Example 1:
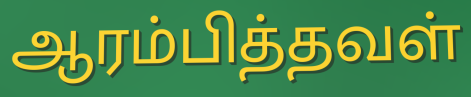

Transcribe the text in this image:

ஆரம்பித்தவள்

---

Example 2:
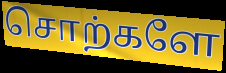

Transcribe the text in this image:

சொற்களே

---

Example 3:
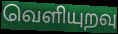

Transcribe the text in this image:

வெளியுறவு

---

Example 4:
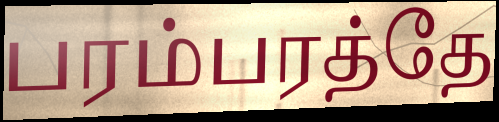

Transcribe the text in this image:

பரம்பரத்தே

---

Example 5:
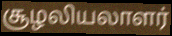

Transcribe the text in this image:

சூழலியலாளர்